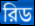
রিড